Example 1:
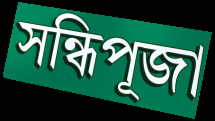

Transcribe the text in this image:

সন্ধিপূজা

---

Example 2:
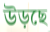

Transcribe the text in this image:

উড়ছে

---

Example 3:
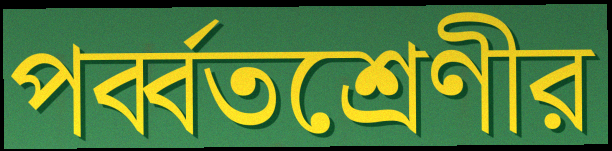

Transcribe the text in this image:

পর্ব্বতশ্রেণীর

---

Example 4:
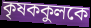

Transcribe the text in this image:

কৃষককুলকে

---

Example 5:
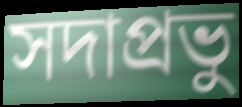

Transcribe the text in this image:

সদাপ্রভু